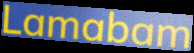
Lamabam